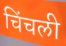
चिंचली